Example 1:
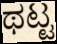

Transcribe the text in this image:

ಥಟ್ಟ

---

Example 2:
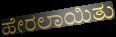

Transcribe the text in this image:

ಹೇರಲಾಯಿತು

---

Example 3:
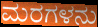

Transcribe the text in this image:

ಮರಗಳನು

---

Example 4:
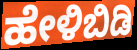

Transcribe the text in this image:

ಹೇಳಿಬಿಡಿ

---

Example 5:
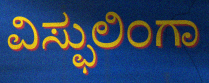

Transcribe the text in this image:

ವಿಸ್ಫುಲಿಂಗಾ